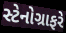
સ્ટેનોગ્રાફરે